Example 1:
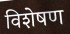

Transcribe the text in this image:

विशेषण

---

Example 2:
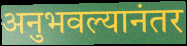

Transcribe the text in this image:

अनुभवल्यानंतर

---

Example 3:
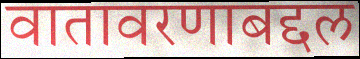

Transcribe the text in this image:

वातावरणाबद्दल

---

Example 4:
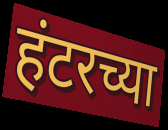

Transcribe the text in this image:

हंटरच्या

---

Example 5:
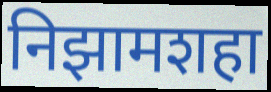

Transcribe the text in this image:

निझामशहा